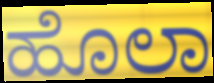
ಹೊಲಾ